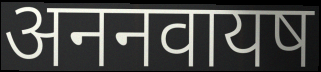
अननवायष